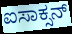
ಐಸಾಕ್ಸನ್